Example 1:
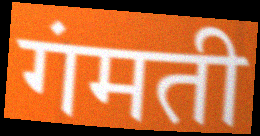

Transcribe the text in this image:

गंमती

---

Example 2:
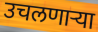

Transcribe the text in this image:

उचलणाऱ्या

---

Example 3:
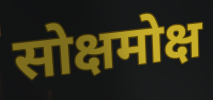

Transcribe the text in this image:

सोक्षमोक्ष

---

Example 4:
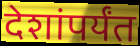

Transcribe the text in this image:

देशांपर्यंत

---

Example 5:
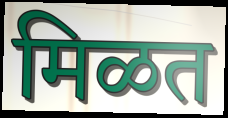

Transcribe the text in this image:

मिळत